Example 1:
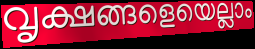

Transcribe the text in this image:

വൃക്ഷങ്ങളെയെല്ലാം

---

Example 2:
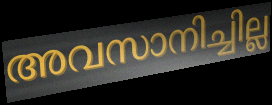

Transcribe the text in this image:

അവസാനിച്ചില്ല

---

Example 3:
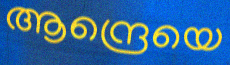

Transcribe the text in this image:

ആന്ദ്രെയെ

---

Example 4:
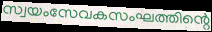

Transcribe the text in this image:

സ്വയംസേവകസംഘത്തിന്റെ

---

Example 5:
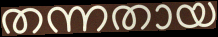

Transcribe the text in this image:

തന്നതായ